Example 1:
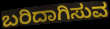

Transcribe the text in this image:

ಬರಿದಾಗಿಸುವ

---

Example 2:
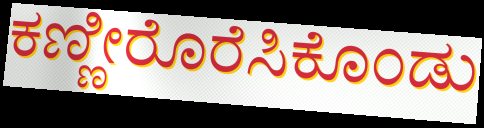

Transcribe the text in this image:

ಕಣ್ಣೀರೊರೆಸಿಕೊಂಡು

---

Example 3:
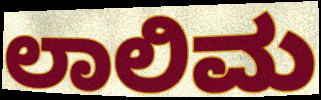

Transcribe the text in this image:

ಲಾಲಿಮ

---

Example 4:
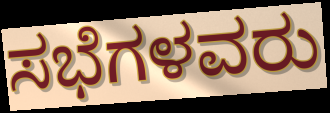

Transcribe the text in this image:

ಸಭೆಗಳವರು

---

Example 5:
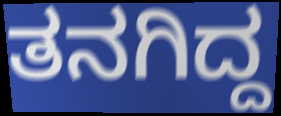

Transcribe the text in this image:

ತನಗಿದ್ದ